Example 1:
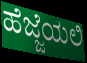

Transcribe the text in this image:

ಹೆಜ್ಜೆಯಲಿ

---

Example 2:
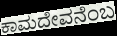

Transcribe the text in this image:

ಕಾಮದೇವನೆಂಬ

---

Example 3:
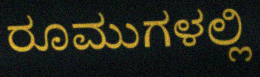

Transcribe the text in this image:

ರೂಮುಗಳಲ್ಲಿ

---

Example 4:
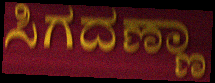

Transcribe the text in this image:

ಸಿಗದಣ್ಣಾ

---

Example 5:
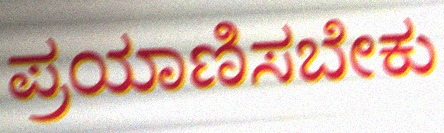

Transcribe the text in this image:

ಪ್ರಯಾಣಿಸಬೇಕು